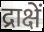
द्राक्षें